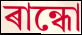
ৰান্ধো